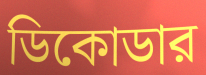
ডিকোডার